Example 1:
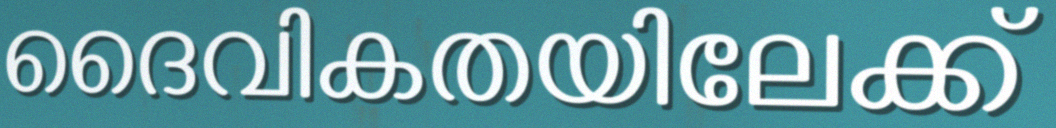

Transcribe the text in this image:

ദൈവികതയിലേക്ക്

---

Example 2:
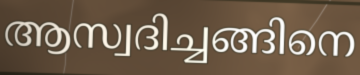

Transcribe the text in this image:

ആസ്വദിച്ചങ്ങിനെ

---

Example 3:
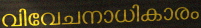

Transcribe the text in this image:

വിവേചനാധികാരം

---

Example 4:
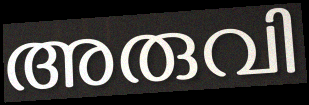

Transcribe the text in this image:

അരുവി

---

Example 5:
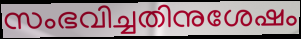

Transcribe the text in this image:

സംഭവിച്ചതിനുശേഷം